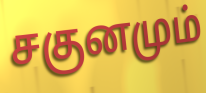
சகுனமும்